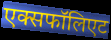
एक्सफॉलिएट